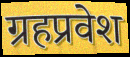
ग्रहप्रवेश